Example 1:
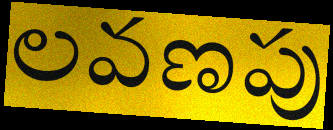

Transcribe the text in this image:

లవణపు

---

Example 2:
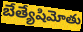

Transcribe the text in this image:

బేత్యేషిమోతు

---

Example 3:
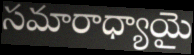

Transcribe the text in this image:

సమారాధ్యాయై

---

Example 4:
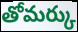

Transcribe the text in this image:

తోమర్కు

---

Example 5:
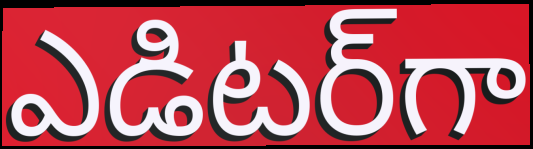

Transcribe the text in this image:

ఎడిటర్‌గా